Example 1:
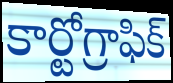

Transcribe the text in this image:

కార్టోగ్రాఫిక్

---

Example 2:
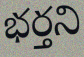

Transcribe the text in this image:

భర్తని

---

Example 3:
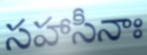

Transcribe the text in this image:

సహాసీనాః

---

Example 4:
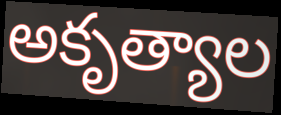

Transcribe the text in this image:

అకృత్యాల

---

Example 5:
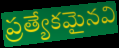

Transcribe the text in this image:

ప్రత్యేకమైనవి